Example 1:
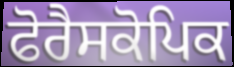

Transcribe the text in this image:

ਫੋਰੈਸਕੋਪਿਕ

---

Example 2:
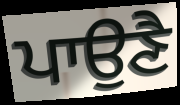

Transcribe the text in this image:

ਪਾਉਣੈ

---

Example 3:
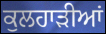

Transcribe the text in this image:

ਕੁਲਹਾੜੀਆਂ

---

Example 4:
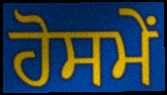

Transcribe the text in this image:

ਹੋਸਮੇਂ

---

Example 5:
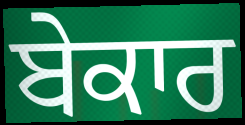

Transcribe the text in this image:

ਬੇਕਾਰ